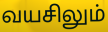
வயசிலும்